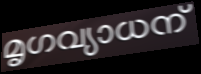
മൃഗവ്യാധന്